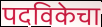
पदविकेचा